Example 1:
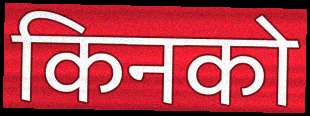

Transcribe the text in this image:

किनको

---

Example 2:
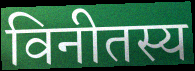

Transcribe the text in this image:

विनीतस्य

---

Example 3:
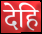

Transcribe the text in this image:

देहि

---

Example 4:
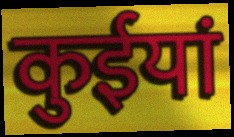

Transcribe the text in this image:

कुईयां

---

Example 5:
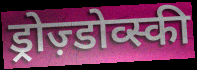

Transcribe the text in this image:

ड्रोज़्डोव्स्की